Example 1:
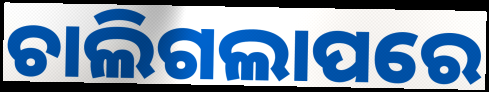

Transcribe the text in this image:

ଚାଲିଗଲାପରେ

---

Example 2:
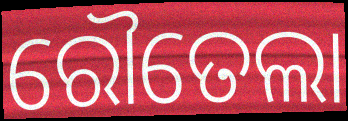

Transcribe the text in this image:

ରୌତେଲା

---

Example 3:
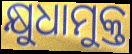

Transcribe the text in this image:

କ୍ଷୁଧାମୁକ୍ତ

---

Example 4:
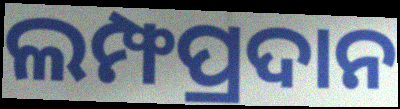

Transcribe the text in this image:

ଲମ୍ଫପ୍ରଦାନ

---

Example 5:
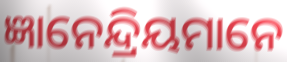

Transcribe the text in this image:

ଜ୍ଞାନେନ୍ଦ୍ରିୟମାନେ